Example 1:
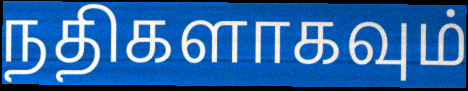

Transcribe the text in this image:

நதிகளாகவும்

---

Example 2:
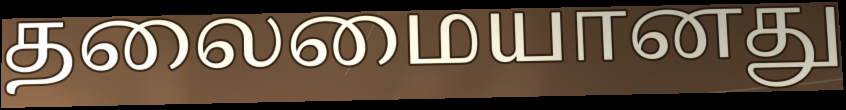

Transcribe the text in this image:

தலைமையானது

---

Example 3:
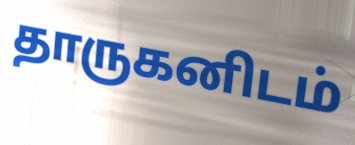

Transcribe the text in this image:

தாருகனிடம்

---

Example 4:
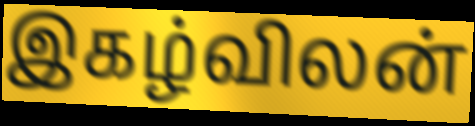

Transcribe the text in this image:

இகழ்விலன்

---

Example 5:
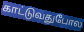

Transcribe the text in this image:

காட்டுவதுபோல